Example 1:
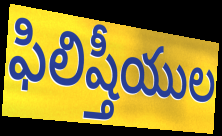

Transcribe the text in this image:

ఫిలిష్తీయుల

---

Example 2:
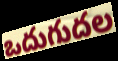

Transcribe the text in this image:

ఒదుగుదల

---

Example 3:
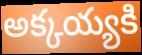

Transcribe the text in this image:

అక్కయ్యకి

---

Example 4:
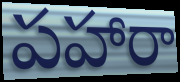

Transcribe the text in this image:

పహారా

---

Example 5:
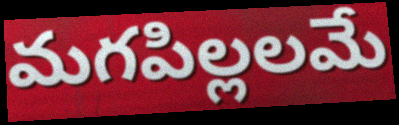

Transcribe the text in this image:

మగపిల్లలమే